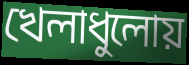
খেলাধুলোয়